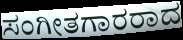
ಸಂಗೀತಗಾರರಾದ